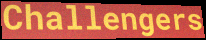
Challengers